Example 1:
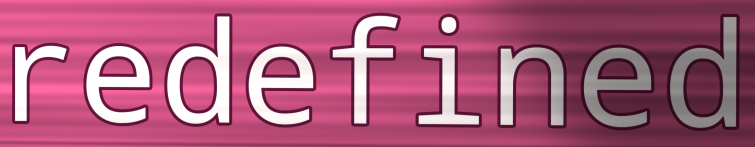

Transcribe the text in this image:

redefined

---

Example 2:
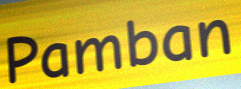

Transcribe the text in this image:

Pamban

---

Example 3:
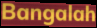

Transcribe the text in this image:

Bangalah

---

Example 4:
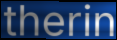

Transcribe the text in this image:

therin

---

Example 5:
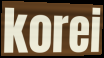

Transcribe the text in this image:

korei